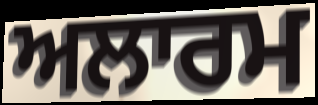
ਅਲਾਰਮ